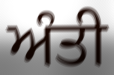
ਅੰਤੀ